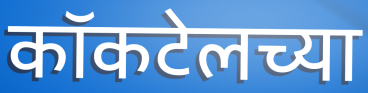
कॉकटेलच्या